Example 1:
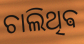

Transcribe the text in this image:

ଚାଲିଥିଵ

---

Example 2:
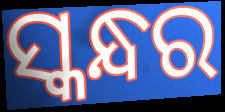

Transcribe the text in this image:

ସ୍କନ୍ଧର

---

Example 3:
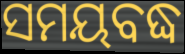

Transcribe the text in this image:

ସମୟବଦ୍ଧ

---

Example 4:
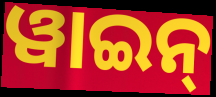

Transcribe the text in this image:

ୱାଇନ୍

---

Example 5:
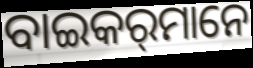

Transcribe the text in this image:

ବାଇକର୍‌ମାନେ